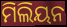
ମିଲିୟନ